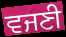
ਵਜਣੀ